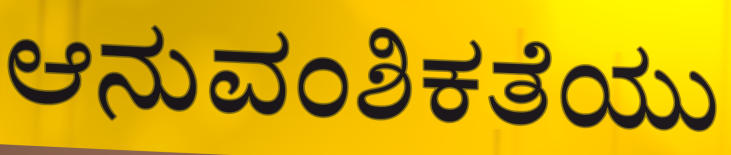
ಆನುವಂಶಿಕತೆಯು